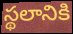
స్థలానికి